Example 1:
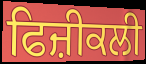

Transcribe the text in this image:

ਫਿਜ਼ੀਕਲੀ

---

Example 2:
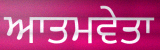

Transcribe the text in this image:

ਆਤਮਵੇਤਾ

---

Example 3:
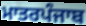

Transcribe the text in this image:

ਮਾਤਰਪੰਜਾਬ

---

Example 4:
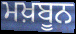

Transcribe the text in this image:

ਮਖ਼ਬੂਨ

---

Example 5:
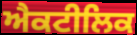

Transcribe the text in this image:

ਐਕਟੀਲਿਕ